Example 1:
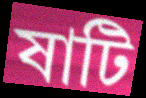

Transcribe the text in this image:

ষাটি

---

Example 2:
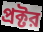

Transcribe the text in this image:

প্রক্টর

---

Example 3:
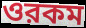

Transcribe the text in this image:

ওরকম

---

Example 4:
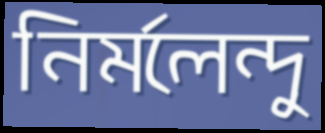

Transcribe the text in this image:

নির্মলেন্দু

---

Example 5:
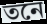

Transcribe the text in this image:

তনে